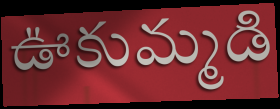
ఊకుమ్మడి